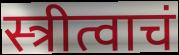
स्त्रीत्वाचं